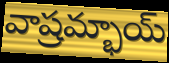
వాష్రమ్భాయ్